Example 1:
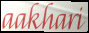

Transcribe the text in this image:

aakhari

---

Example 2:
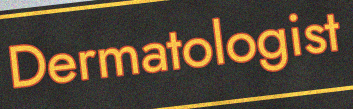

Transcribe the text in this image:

Dermatologist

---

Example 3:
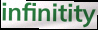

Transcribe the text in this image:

infinitity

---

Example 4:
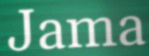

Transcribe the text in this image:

Jama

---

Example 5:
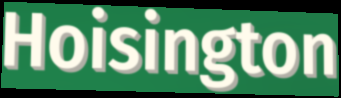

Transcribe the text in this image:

Hoisington